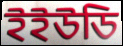
ইইউডি